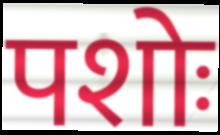
पशोः